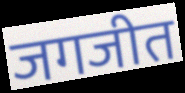
जगजीत